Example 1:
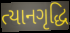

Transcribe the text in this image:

ત્યાનગૃદ્ધિ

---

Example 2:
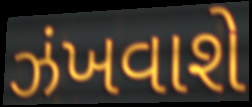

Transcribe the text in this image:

ઝંખવાશે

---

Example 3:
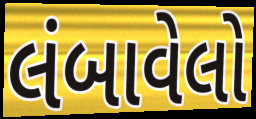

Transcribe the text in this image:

લંબાવેલો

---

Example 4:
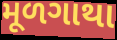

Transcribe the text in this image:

મૂળગાથા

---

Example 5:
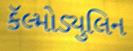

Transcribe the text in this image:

કૅલ્મોડ્યુલિન